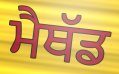
ਮੈਥੱਡ